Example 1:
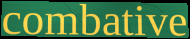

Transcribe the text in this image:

combative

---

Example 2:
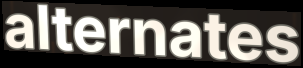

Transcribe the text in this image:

alternates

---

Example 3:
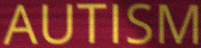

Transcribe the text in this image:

AUTISM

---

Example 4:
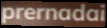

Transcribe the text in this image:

prernadai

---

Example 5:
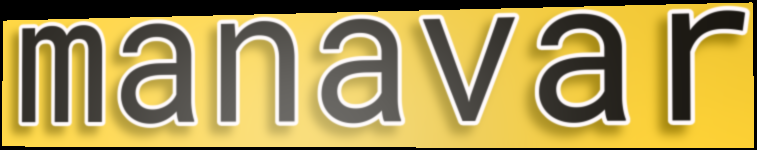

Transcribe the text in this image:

manavar